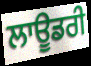
ਲਾਊਡਰੀ